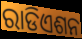
ରାଡିଏଶନ